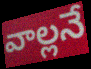
వాల్లనే